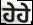
ਹੇਹੇ